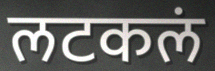
लटकलं